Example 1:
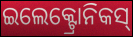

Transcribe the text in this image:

ଇଲେକ୍ଟ୍ରୋନିକସ୍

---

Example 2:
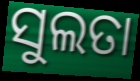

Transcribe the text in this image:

ସୁଲତା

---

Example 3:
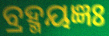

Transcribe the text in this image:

ବ୍ରହ୍ମୟଜ୍ଞଃ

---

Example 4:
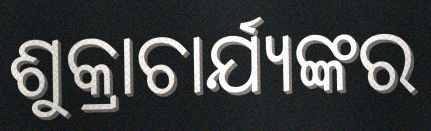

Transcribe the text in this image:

ଶୁକ୍ରାଚାର୍ଯ୍ୟଙ୍କର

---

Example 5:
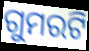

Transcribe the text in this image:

ଗୁମରଟି